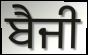
ਬੈਜੀ